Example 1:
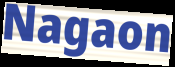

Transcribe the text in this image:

Nagaon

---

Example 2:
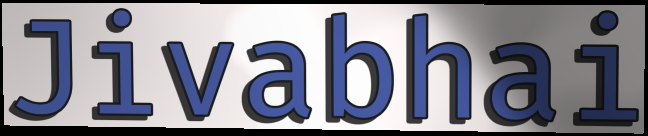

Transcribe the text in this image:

Jivabhai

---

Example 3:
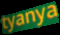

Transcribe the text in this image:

tyanya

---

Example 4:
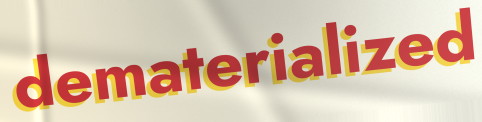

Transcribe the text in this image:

dematerialized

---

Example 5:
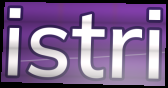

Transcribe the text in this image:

istri